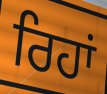
ਰਿਹਾਂ